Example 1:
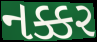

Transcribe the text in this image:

નક્કર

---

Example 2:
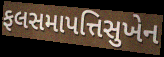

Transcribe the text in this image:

ફલસમાપત્તિસુખેન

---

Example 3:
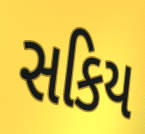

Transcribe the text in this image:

સકિય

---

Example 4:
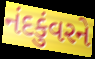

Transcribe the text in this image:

નંદકુંવરને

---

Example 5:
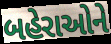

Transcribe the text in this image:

બહેરાઓને